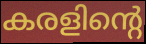
കരളിന്റെ